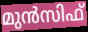
മുൻസിഫ്